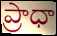
ప్రాధా